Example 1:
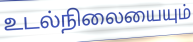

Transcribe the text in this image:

உடல்நிலையையும்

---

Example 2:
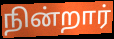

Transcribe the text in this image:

நின்றார்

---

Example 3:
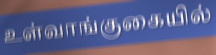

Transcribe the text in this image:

உள்வாங்குகையில்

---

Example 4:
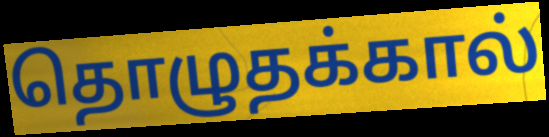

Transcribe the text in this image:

தொழுதக்கால்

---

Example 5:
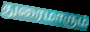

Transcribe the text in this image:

துரைமாரும்